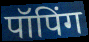
पॉपिंग